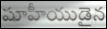
షూహీయుడైన